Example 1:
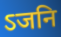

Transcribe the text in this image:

ऽजनि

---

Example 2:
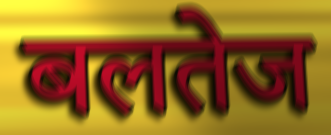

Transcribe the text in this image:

बलतेज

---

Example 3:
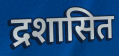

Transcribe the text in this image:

द्रशासित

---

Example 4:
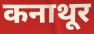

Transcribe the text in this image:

कनाथूर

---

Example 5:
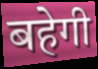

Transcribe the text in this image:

बहेगी